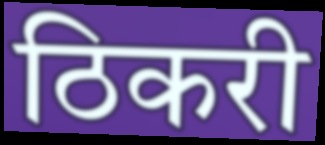
ठिकरी